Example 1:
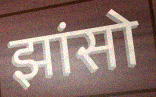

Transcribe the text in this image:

झांसो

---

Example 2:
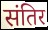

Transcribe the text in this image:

संतिर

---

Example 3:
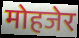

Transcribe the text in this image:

मोहजेर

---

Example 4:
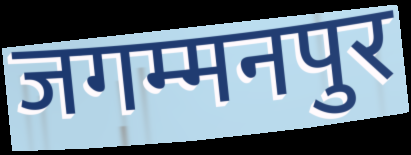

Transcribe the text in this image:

जगम्मनपुर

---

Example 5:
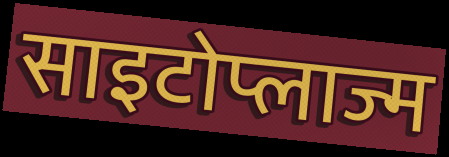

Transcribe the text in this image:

साइटोप्लाज्म